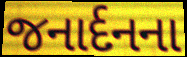
જનાર્દનના